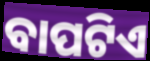
ବାପଟିଏ